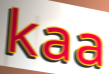
kaa